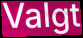
Valgt